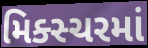
મિક્સ્ચરમાં